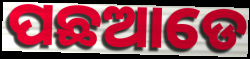
ପଛଆଡେ